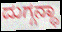
ದುಗ್ಗನ್ಧಾ